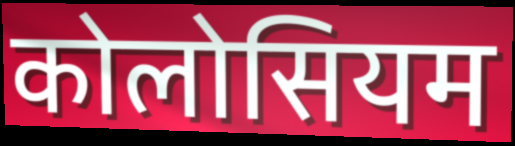
कोलोसियम